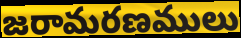
జరామరణములు